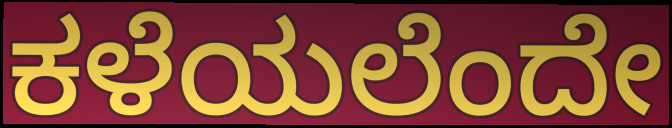
ಕಳೆಯಲೆಂದೇ